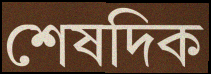
শেষদিক